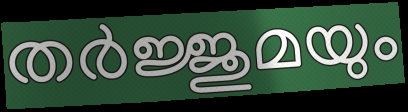
തർജ്ജുമയും